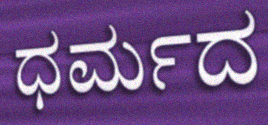
ಧರ್ಮದ